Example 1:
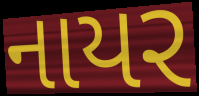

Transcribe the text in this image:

નાયર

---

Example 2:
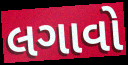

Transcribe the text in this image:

લગાવો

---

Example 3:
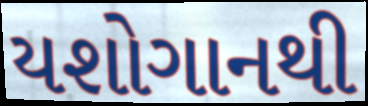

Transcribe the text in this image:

યશોગાનથી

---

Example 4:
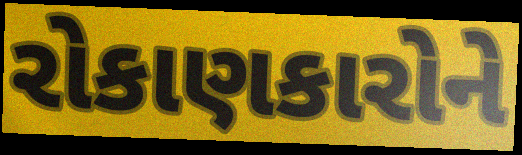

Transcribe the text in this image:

રોકાણકારોને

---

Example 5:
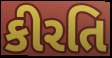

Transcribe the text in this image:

કીરતિ